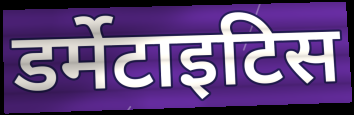
डर्मेटाइटिस